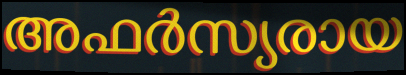
അഫർസ്യരായ